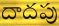
దాదపు